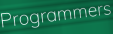
Programmers